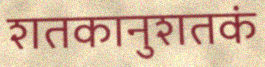
शतकानुशतकं